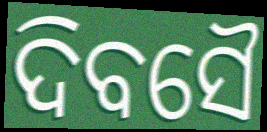
ଦିବସୈ